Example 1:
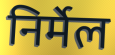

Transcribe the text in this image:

निर्मेल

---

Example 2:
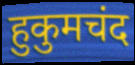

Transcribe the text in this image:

हुकुमचंद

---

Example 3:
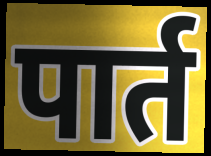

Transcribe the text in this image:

पार्त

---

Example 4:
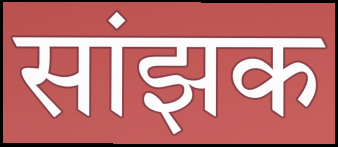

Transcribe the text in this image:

सांझक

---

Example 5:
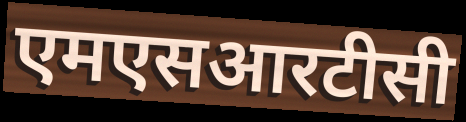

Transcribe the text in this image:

एमएसआरटीसी